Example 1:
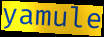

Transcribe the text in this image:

yamule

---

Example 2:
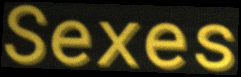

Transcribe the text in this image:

Sexes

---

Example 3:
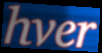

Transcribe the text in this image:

hver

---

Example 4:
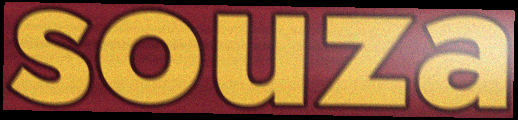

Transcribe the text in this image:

souza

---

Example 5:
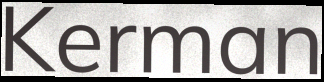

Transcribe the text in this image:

Kerman